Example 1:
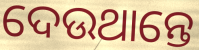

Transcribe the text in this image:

ଦେଉଥାନ୍ତେ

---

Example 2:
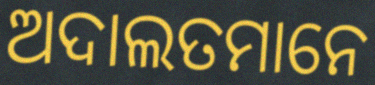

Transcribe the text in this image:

ଅଦାଲତମାନେ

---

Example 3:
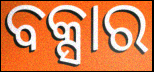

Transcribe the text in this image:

ବକ୍ସାର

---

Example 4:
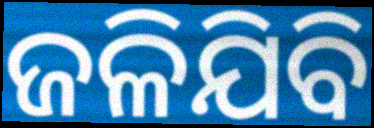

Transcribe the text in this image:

ଜଳିଯିବି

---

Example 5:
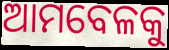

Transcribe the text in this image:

ଆମବେଳକୁ